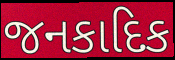
જનકાદિક